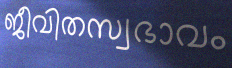
ജീവിതസ്വഭാവം